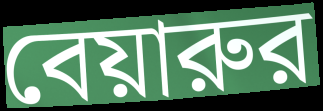
বেয়ারুর